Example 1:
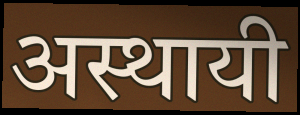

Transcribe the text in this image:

अस्थायी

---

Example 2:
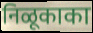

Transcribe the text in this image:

निळूकाका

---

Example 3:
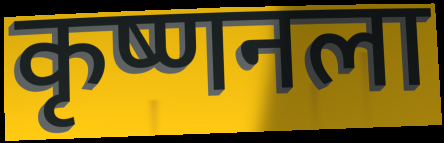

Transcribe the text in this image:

कृष्णनला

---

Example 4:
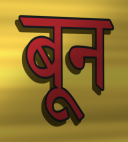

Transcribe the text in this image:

बून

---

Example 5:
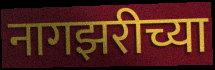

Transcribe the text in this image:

नागझरीच्या